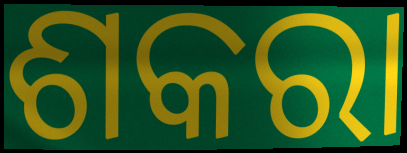
ଶକରା